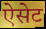
ऐसेट